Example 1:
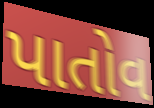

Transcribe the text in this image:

પાતોવ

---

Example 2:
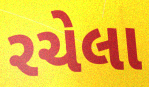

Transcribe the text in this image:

રચેલા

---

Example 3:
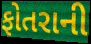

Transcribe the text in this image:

ફોતરાની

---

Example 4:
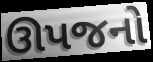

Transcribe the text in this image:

ઊપજનો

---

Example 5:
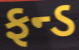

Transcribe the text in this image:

ફન્ડ